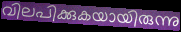
വിലപിക്കുകയായിരുന്നു